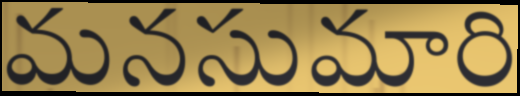
మనసుమారి